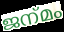
ജന്‌മം